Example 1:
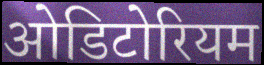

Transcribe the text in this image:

ओडिटोरियम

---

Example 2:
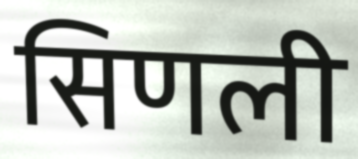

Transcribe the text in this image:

सिणली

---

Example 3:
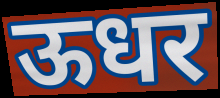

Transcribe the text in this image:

ऊधर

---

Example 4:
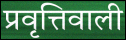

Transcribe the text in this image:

प्रवृत्तिवाली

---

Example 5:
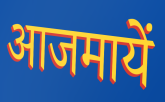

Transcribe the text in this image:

आजमायें